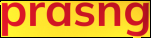
prasng